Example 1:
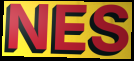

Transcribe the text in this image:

NES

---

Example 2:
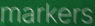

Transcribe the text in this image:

markers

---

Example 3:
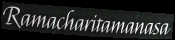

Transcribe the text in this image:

Ramacharitamanasa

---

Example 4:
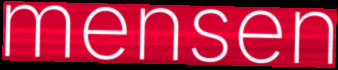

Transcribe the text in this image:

mensen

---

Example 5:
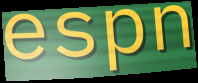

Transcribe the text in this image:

espn